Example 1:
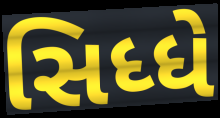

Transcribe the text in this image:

સિધ્ધે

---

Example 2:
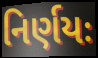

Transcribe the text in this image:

નિર્ણયઃ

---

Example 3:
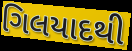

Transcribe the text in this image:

ગિલયાદથી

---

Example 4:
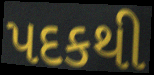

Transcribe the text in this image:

પદકથી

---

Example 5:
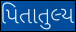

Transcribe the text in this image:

પિતાતુલ્ય